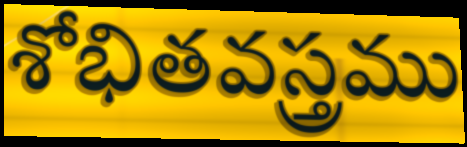
శోభితవస్త్రము